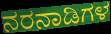
ನರನಾಡಿಗಳ